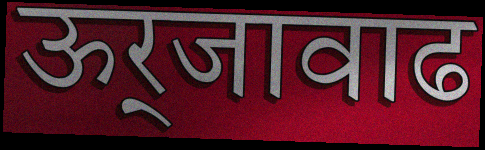
ऊर्जावाढ